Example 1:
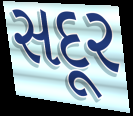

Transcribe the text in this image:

સદૂર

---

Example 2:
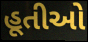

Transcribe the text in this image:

હૂતીઓ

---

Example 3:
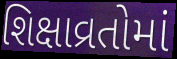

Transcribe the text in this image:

શિક્ષાવ્રતોમાં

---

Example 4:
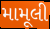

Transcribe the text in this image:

મામૂલી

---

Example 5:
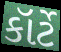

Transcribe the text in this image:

કૉર્ટે